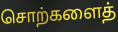
சொற்களைத்